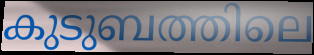
കുടുബത്തിലെ